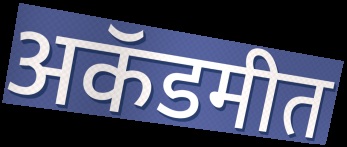
अकॅडमीत